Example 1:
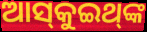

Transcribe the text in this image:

ଆସ୍‌କୁଇଥ୍‌ଙ୍କ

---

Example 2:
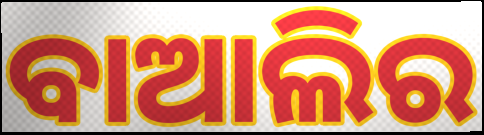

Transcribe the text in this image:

ବାଆଲିର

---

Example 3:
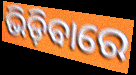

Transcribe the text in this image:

ଭିଡ଼ିବାରେ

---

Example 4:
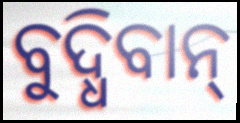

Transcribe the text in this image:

ବୁଦ୍ଧିବାନ୍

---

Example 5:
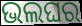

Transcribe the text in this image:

ଭଲଘର